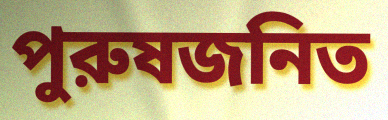
পুরুষজনিত